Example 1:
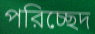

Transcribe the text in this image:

পরিচ্ছেদ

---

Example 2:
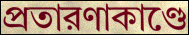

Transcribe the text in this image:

প্রতারণাকাণ্ডে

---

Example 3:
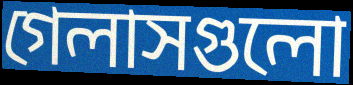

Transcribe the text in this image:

গেলাসগুলো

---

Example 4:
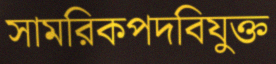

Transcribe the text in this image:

সামরিকপদবিযুক্ত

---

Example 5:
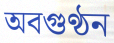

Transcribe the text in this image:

অবগুণ্ঠন